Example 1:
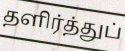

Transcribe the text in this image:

தளிர்த்துப்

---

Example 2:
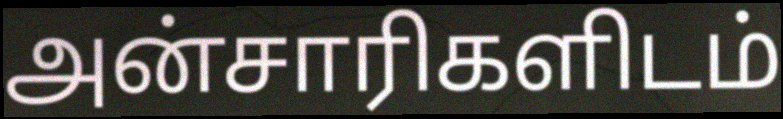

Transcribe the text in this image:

அன்சாரிகளிடம்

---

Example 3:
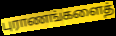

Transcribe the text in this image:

புராணங்களைத்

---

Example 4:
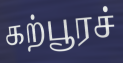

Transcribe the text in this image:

கற்பூரச்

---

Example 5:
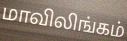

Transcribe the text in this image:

மாவிலிங்கம்